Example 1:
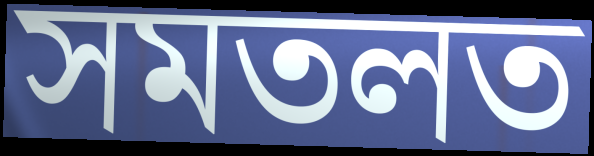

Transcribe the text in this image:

সমতলত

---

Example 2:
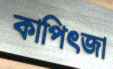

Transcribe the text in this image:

কাপিৎজা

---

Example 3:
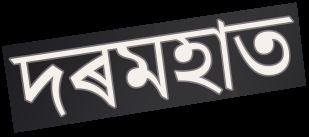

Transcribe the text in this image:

দৰমহাত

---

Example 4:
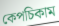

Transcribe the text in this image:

কেপচিকাম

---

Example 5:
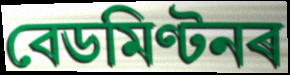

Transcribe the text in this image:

বেডমিণ্টনৰ